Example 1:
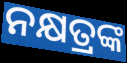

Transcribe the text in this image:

ନକ୍ଷତ୍ରଙ୍କ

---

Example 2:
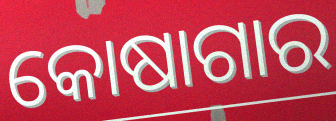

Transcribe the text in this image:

କୋଷାଗାର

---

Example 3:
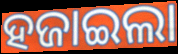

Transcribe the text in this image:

ହଜାଇଲା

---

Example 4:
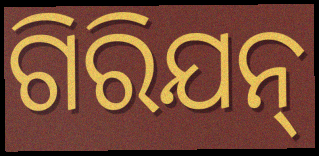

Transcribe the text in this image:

ଗିରିଯନ୍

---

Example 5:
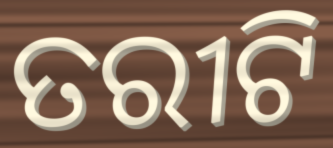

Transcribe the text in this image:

ତରୀଟି